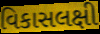
વિકાસલક્ષી